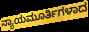
ನ್ಯಾಯಮೂರ್ತಿಗಳಾದ